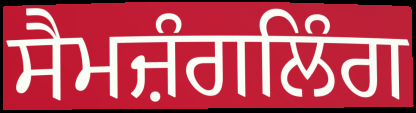
ਸੈਮਜ਼ੰਗਲਿੰਗ